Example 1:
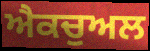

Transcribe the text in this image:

ਐਕਚੁਅਲ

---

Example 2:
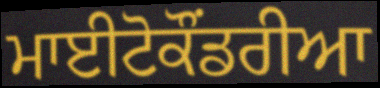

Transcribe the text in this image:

ਮਾਈਟੋਕੌਂਡਰੀਆ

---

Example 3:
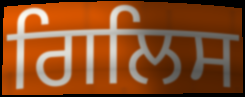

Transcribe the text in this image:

ਗਿਲਿਸ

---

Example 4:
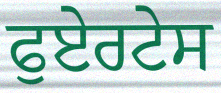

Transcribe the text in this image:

ਫੁਏਰਟੇਸ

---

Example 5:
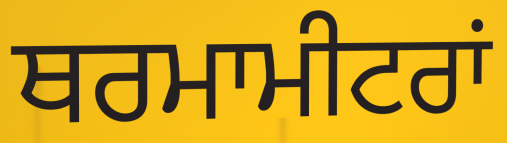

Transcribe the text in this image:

ਥਰਮਾਮੀਟਰਾਂ